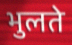
भुलते